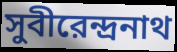
সুবীরেন্দ্রনাথ